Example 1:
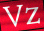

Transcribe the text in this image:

Vz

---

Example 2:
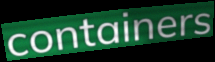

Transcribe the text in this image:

containers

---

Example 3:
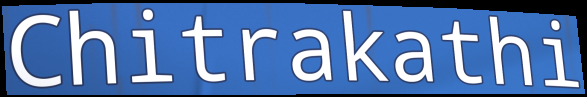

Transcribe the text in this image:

Chitrakathi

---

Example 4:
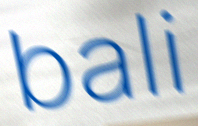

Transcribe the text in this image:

bali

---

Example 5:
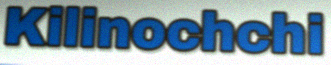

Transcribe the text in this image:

Kilinochchi